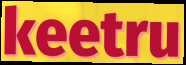
keetru